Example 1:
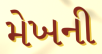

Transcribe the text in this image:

મેખની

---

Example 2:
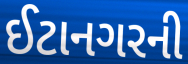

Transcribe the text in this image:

ઈટાનગરની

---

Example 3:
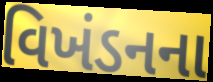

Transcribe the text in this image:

વિખંડનના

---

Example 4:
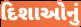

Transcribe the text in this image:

દિશાઓનું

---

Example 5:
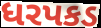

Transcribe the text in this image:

ધરપકડ